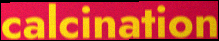
calcination